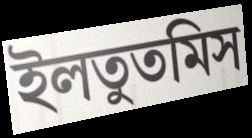
ইলতুতমিস